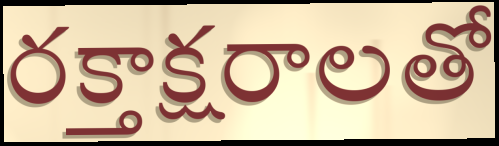
రక్తాక్షరాలతో